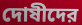
দোষীদের